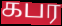
கபர